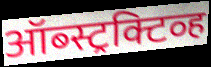
ऑब्स्ट्रक्टिव्ह